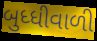
બુધ્ધીવાળી